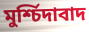
মুৰ্শ্চিদাবাদ